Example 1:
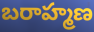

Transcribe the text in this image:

బరాహ్మణ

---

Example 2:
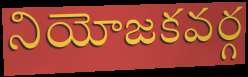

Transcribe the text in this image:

నియోజకవర్గ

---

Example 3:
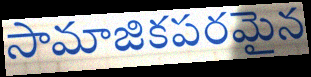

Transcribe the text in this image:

సామాజికపరమైన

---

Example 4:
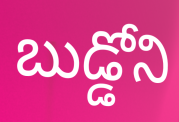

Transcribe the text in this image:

బుడ్డోని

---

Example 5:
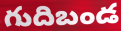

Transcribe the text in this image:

గుదిబండ